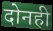
दोनही